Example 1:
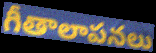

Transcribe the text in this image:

గీతాలాపనలు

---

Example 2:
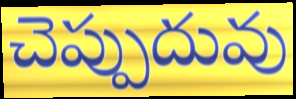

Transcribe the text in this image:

చెప్పుదువు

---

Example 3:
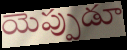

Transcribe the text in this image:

యెప్పుడూ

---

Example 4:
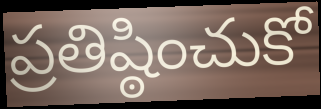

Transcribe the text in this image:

ప్రతిష్ఠించుకో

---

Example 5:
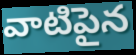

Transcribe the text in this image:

వాటిపైన